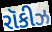
રૉકીઝ